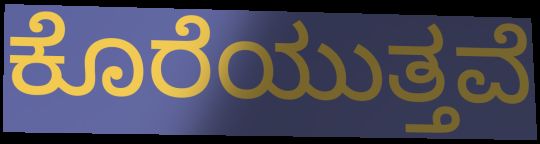
ಕೊರೆಯುತ್ತವೆ